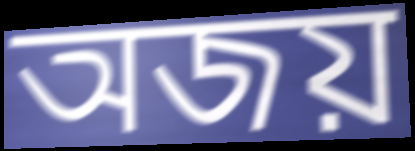
অজয়